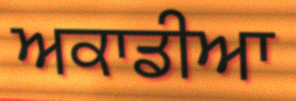
ਅਕਾਡੀਆ